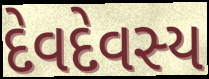
દેવદેવસ્ય